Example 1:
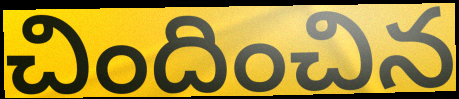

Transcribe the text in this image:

చిందించిన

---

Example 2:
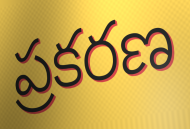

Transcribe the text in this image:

ప్రకరణ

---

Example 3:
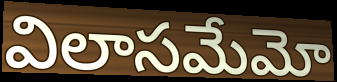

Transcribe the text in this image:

విలాసమేమో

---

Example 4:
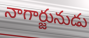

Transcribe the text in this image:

నాగార్జునుడు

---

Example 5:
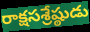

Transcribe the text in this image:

రాక్షసశ్రేష్ఠుడు